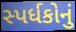
સ્પર્ધકોનું